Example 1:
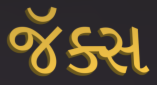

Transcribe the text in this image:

જૅક્સ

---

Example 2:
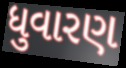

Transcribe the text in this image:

ધુવારણ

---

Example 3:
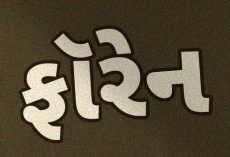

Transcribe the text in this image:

ફૉરેન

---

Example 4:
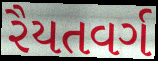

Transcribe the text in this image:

રૈયતવર્ગ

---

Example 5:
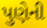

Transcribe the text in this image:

પુણેની